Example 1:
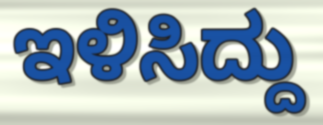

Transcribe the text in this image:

ಇಳಿಸಿದ್ದು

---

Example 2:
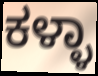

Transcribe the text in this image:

ಕಳ್ಳಾ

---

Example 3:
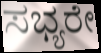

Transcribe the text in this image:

ಸಭ್ಯರೇ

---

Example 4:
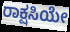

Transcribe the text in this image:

ರಾಕ್ಷಸಿಯೇ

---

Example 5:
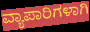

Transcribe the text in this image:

ವ್ಯಾಪಾರಿಗಳಾಗಿ